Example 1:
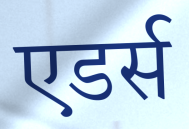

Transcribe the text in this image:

एडर्स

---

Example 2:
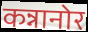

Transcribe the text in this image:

कन्नानोर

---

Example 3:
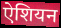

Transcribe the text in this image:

ऐशियन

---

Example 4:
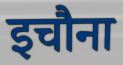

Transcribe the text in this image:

इचौना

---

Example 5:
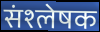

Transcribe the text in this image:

संश्लेषक